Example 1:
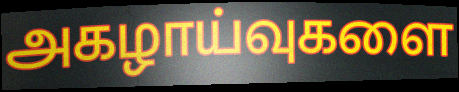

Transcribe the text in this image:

அகழாய்வுகளை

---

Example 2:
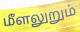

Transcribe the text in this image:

மீளலுறும்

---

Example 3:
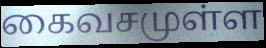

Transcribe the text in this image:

கைவசமுள்ள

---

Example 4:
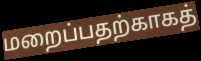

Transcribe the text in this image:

மறைப்பதற்காகத்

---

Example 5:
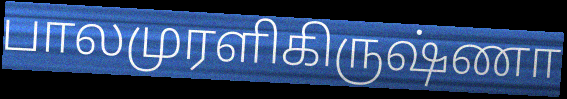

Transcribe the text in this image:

பாலமுரளிகிருஷ்ணா